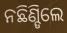
ନଛିଣ୍ଡିଲେ